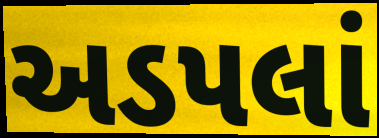
અડપલાં